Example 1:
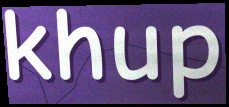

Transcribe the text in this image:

khup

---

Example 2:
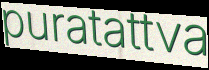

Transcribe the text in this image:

puratattva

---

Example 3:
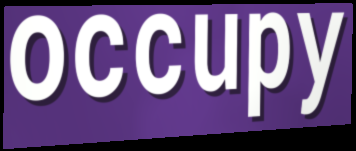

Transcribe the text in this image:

occupy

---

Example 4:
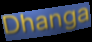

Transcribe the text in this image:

Dhanga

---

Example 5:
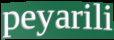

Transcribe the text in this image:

peyarili